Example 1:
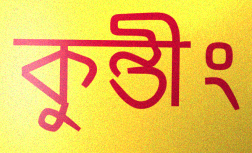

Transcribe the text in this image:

কুন্তীং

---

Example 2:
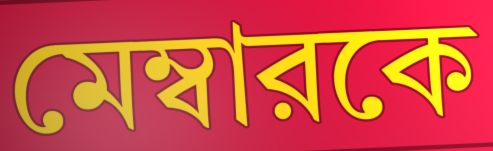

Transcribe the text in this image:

মেম্বারকে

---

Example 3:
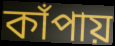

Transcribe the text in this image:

কাঁপায়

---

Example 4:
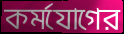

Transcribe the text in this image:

কর্মযোগের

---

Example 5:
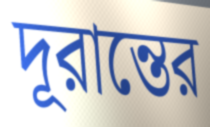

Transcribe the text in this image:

দূরান্তের